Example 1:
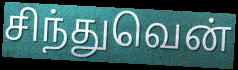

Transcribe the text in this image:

சிந்துவென்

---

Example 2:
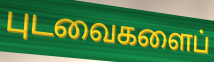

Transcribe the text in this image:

புடவைகளைப்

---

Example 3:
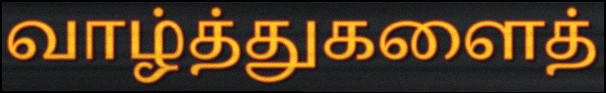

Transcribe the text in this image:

வாழ்த்துகளைத்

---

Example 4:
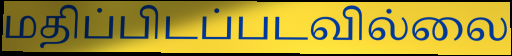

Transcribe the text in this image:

மதிப்பிடப்படவில்லை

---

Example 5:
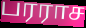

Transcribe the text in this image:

பரராச